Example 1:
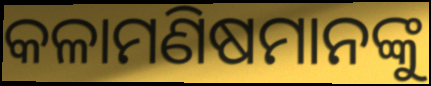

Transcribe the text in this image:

କଳାମଣିଷମାନଙ୍କୁ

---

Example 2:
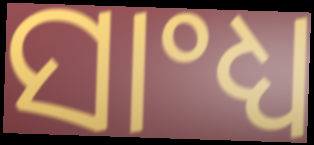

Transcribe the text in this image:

ସାଂଧ୍ୟ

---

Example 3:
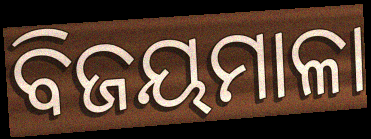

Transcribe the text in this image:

ବିଜୟମାଳା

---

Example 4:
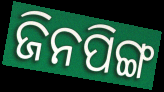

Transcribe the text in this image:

ଜିନପିଙ୍ଗ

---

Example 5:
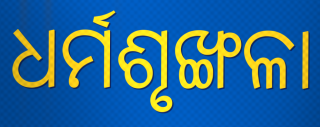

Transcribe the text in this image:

ଧର୍ମଶୃଙ୍ଖଳା